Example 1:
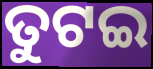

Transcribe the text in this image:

ତୁଟଇ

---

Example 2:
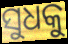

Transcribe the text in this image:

ସୁଧକୁ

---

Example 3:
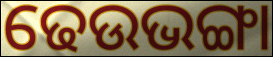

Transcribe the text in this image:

ଢେଉଭଙ୍ଗା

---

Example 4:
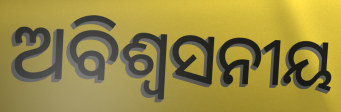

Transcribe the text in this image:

ଅବିଶ୍ବସନୀୟ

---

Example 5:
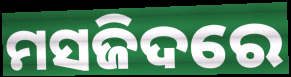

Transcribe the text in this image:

ମସଜିଦରେ